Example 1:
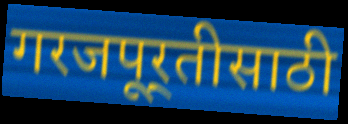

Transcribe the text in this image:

गरजपूर्तीसाठी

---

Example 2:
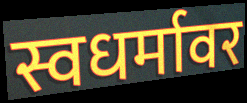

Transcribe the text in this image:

स्वधर्मावर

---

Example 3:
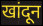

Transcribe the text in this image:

खांदून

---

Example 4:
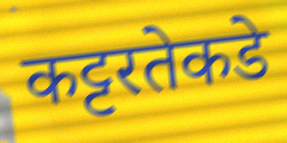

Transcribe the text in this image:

कट्टरतेकडे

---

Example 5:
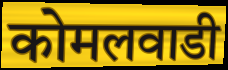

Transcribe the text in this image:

कोमलवाडी